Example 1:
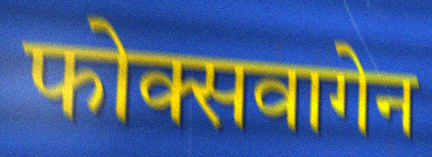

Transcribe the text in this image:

फोक्सवागेन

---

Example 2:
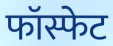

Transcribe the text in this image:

फॉस्फेट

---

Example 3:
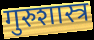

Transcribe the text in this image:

गुरुशास्त्र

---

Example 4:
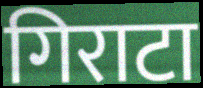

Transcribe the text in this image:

गिराटा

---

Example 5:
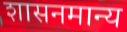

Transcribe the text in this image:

शासनमान्य